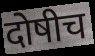
दोषीच